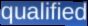
qualified